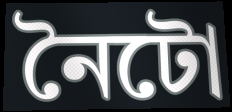
নৈটো